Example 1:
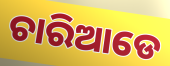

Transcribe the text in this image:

ଚାରିଆଡେ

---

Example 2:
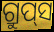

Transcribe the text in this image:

ଗ୍ରୁପ୍‌ସ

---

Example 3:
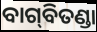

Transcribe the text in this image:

ବାଗ୍‌ବିତଣ୍ଡା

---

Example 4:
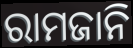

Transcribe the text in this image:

ରାମଜାନି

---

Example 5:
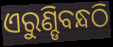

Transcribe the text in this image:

ଏରୁଣ୍ଡିବନ୍ଧଠି